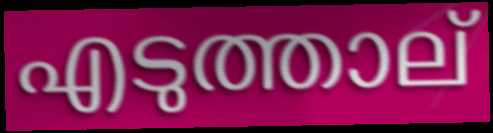
എടുത്താല്